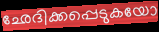
ഛേദിക്കപ്പെടുകയോ